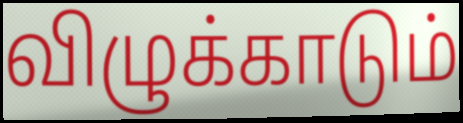
விழுக்காடும்